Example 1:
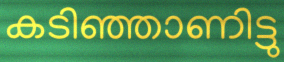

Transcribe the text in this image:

കടിഞ്ഞാണിട്ടു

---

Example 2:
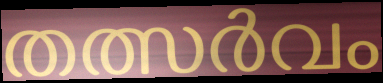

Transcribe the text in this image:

തത്സർവം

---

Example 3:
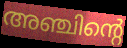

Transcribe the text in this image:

അഞ്ചിന്റെ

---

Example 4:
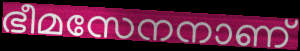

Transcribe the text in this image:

ഭീമസേനനാണ്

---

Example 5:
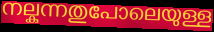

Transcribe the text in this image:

നല്കുന്നതുപോലെയുള്ള